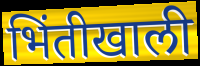
भिंतीखाली